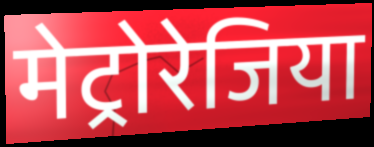
मेट्रोरेजिया